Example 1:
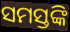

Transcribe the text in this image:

ସମସ୍ତଙ୍କି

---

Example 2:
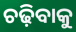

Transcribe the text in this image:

ଚଢ଼ିବାକୁ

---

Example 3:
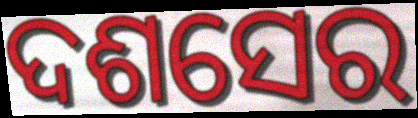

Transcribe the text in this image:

ଦଶସେର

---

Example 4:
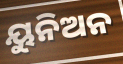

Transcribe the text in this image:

ୟୁନିଅନ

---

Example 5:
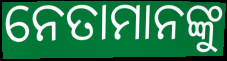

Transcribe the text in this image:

ନେତାମାନଙ୍କୁ